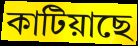
কাটিয়াছে